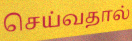
செய்வதால்